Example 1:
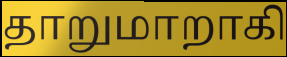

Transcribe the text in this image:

தாறுமாறாகி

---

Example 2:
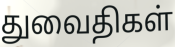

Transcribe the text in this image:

துவைதிகள்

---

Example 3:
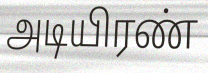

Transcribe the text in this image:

அடியிரண்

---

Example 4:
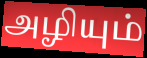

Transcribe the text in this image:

அழியும்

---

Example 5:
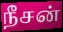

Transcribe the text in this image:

நீசன்